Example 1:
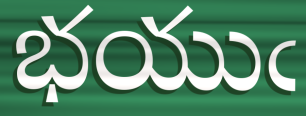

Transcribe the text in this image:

భయుఁ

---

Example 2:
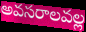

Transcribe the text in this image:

అవసరాలవల్ల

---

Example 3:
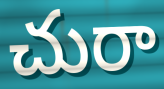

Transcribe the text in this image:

చురా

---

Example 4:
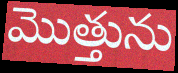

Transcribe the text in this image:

మొత్తును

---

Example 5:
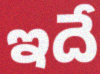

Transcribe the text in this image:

ఇదే